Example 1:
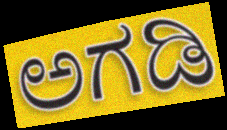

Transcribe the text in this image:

ಅಗಡಿ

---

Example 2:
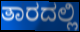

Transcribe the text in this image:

ತಾರದಲ್ಲಿ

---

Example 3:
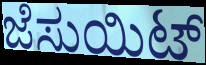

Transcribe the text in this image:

ಜೆಸುಯಿಟ್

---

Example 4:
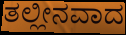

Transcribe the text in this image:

ತಲ್ಲೀನವಾದ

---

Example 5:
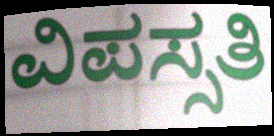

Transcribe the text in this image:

ವಿಪಸ್ಸತಿ